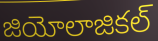
జియోలాజికల్